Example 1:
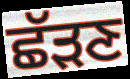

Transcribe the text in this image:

ਛੱੜਣ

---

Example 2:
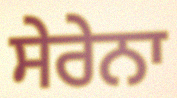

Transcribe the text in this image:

ਸੇਰੇਨਾ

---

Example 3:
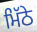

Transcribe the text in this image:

ਮਿੱਠੇ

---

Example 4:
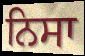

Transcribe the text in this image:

ਨਿਸਾ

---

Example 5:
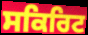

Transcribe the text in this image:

ਸਕਿਰਿਟ